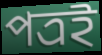
পত্ৰই